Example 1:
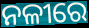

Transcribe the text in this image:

ନଳୀରେ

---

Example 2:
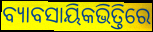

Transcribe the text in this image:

ବ୍ୟାବସାୟିକଭିତ୍ତିରେ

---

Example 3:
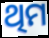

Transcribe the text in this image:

ଥିମ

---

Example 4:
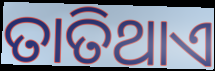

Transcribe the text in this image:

ତାତିଥାଏ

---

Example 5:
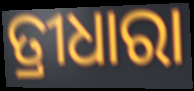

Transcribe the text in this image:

ତ୍ରୀଧାରା